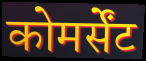
कोमर्सेंट